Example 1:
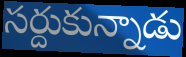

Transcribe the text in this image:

సర్దుకున్నాడు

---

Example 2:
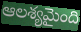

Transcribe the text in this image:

ఆలశ్యమైంది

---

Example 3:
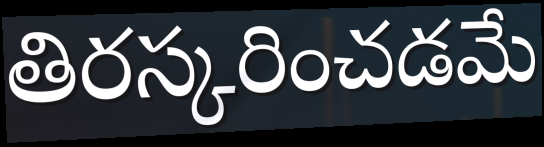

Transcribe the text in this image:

తిరస్కరించడమే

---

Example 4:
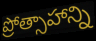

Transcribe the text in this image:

ప్రోత్సాహాన్ని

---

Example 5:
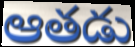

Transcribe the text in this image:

ఆతడు